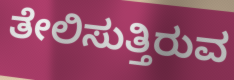
ತೇಲಿಸುತ್ತಿರುವ